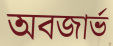
অবজার্ভ